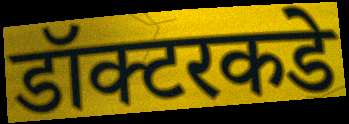
डॉक्टरकडे